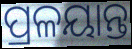
ପ୍ରଳୟାନ୍ତ